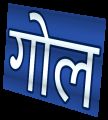
गोल